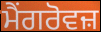
ਮੈਂਗਰੋਵਜ਼